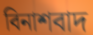
বিনাশবাদ